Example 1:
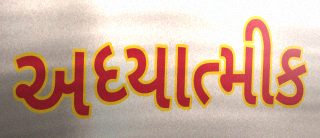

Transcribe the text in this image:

અધ્યાત્મીક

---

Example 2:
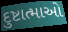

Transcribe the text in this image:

દુષ્ટાત્માઓ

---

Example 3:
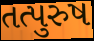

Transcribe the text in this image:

તત્પુરુષ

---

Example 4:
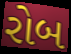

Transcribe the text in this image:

રોબ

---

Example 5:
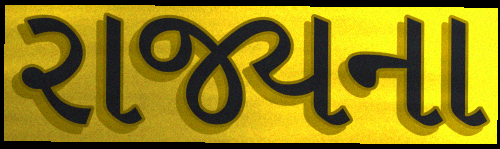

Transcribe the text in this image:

રાજ્યના